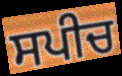
ਸਪੀਚ